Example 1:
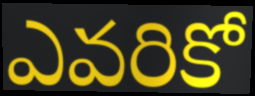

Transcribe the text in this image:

ఎవరికో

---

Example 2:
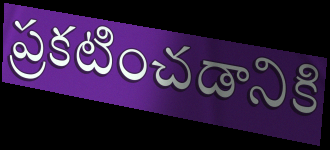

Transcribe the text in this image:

ప్రకటించడానికి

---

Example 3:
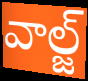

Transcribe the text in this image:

వాల్జ్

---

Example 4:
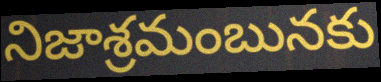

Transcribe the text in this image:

నిజాశ్రమంబునకు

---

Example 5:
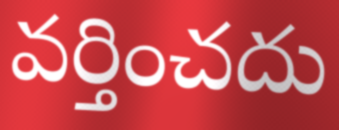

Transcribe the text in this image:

వర్తించదు